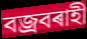
বজ্ৰবৰাহী